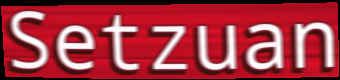
Setzuan